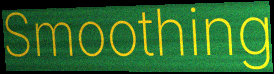
Smoothing